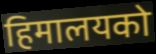
हिमालयको